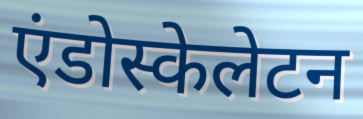
एंडोस्केलेटन